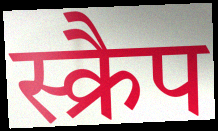
स्क्रैप